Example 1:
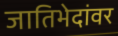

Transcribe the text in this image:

जातिभेदांवर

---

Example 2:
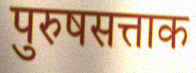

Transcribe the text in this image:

पुरुषसत्ताक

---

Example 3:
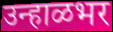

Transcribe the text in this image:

उन्हाळभर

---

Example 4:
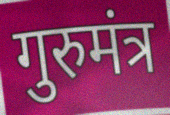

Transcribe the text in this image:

गुरुमंत्र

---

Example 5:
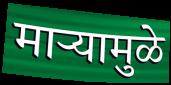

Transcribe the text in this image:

माऱ्यामुळे